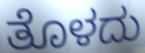
ತೊಳದು